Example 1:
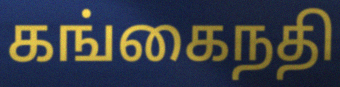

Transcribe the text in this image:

கங்கைநதி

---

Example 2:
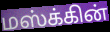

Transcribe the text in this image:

மஸ்க்கின்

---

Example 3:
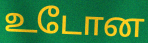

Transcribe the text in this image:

உடோன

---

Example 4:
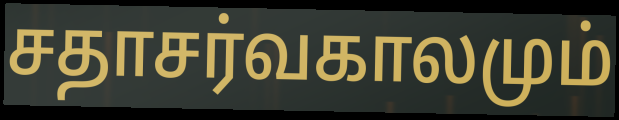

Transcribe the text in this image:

சதாசர்வகாலமும்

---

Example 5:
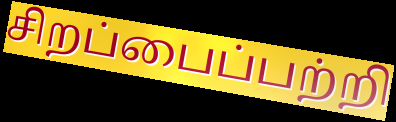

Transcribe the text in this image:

சிறப்பைப்பற்றி